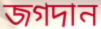
জগদান